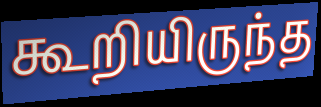
கூறியிருந்த